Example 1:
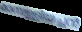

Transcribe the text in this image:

മാമ്പള്ളിയച്ചൻ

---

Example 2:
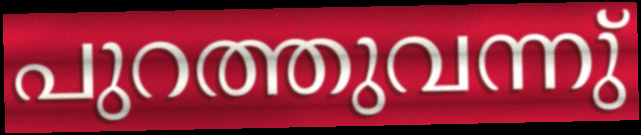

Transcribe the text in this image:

പുറത്തുവന്നു്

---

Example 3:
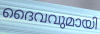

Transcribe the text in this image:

ദൈവവുമായി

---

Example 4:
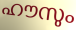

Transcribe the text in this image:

ഹൗസും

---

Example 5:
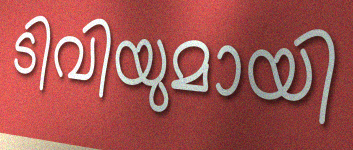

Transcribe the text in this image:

ടിവിയുമായി